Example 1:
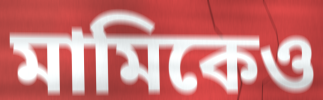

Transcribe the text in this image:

মামিকেও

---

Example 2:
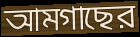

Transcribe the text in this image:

আমগাছের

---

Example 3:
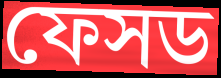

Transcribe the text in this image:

ফেসড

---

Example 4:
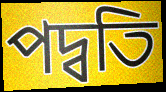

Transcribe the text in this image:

পদ্বতি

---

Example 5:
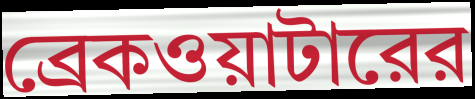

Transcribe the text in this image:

ব্রেকওয়াটারের